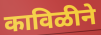
काविळीने